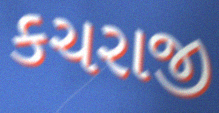
કચરાજી